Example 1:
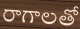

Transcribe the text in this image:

రాగాలతో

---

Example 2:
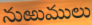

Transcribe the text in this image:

నుఱుములు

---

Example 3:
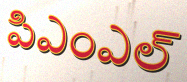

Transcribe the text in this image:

పిఎంఎల్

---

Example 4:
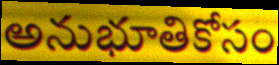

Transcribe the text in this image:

అనుభూతికోసం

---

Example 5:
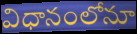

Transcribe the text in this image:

విధానంలోనూ